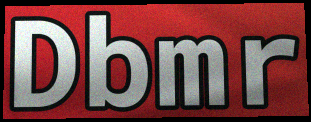
Dbmr